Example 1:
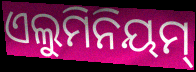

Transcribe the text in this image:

ଏଲୁମିନିୟମ୍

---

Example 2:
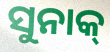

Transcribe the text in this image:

ସୁନାକ୍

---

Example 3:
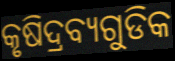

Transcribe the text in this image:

କୃଷିଦ୍ରବ୍ୟଗୁଡିକ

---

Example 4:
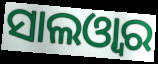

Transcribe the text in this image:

ସାଲଓ୍ଵାର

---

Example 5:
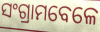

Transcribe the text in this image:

ସଂଗ୍ରାମବେଳେ